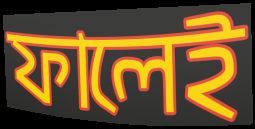
ফালেই